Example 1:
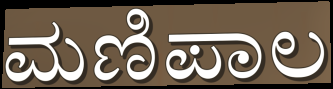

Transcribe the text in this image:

ಮಣಿಪಾಲ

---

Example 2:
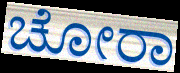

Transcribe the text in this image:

ಚೋರಾ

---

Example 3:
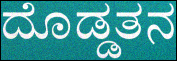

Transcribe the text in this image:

ದೊಡ್ಡತನ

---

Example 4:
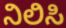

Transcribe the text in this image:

ನಿಲಿಸಿ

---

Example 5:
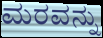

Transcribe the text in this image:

ಮರವನ್ನು